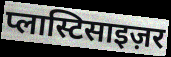
प्लास्टिसाइज़र